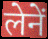
लेनें